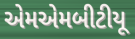
એમએમબીટીયૂ